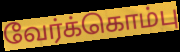
வேர்க்கொம்பு